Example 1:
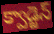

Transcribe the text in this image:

క్వాడ్జెన్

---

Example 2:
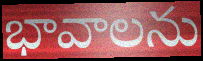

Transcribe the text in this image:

భావాలను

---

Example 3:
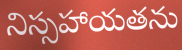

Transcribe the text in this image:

నిస్సహాయతను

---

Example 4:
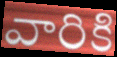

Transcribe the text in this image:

వారికి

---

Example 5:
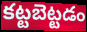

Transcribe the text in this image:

కట్టబెట్టడం